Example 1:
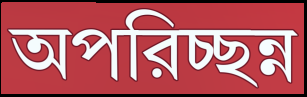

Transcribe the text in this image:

অপরিচ্ছন্ন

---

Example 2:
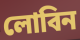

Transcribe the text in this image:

লোবিন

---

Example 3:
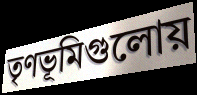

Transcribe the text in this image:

তৃণভূমিগুলোয়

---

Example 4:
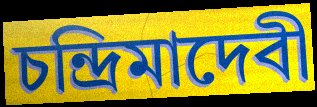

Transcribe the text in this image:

চন্দ্রিমাদেবী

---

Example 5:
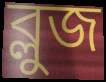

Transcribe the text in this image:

ব্লুজ